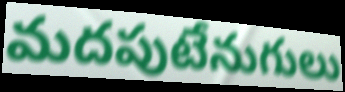
మదపుటేనుగులు